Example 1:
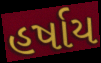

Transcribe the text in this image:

હર્ષાય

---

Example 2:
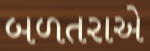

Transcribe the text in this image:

બળતરાએ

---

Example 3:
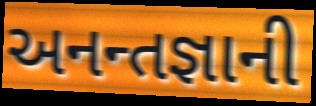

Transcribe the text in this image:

અનન્તજ્ઞાની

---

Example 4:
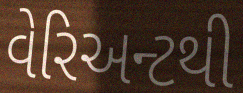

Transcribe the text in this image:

વેરિઅન્ટથી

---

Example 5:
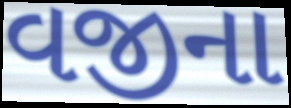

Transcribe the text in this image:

વજીના